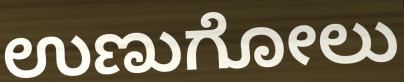
ಉಣುಗೋಲು